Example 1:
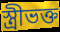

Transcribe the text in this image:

স্ত্রীভক্ত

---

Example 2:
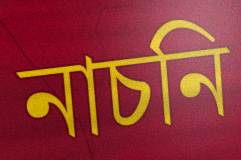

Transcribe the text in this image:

নাচনি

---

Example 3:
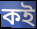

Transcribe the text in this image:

কই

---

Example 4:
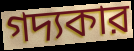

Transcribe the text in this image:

গদ্যকার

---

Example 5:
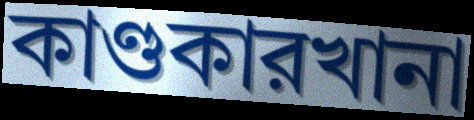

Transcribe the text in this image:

কাণ্ডকারখানা